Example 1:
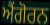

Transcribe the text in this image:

ਐਂਗੋਰਨ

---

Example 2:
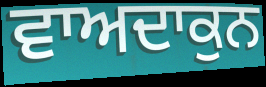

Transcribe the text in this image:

ਵਾਅਦਾਕੁਨ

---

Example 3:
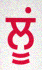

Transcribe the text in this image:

ਲੂਂ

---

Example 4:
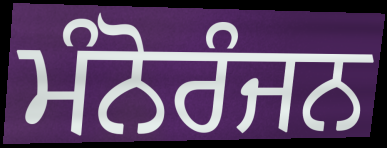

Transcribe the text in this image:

ਮੰਨੋਰੰਜਨ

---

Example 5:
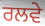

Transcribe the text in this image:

ਰਲਵੇ